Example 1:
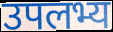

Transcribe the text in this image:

उपलभ्य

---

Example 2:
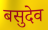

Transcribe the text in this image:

बसुदेव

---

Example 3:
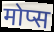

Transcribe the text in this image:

मोप्स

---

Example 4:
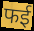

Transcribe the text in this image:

फई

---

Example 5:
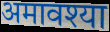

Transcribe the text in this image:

अमावश्या